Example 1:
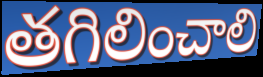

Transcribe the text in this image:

తగిలించాలి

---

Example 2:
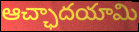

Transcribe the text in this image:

ఆచ్ఛాదయామి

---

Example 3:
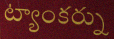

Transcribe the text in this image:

ట్యాంకర్ను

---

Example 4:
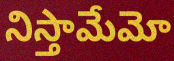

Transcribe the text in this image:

నిస్తామేమో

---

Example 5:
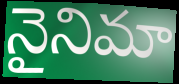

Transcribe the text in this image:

నైనిమా